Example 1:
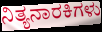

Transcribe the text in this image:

ನಿತ್ಯನಾರಕಿಗಳು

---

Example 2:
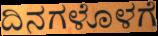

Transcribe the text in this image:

ದಿನಗಳೊಳಗೆ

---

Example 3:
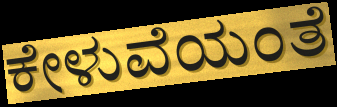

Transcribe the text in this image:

ಕೇಳುವೆಯಂತೆ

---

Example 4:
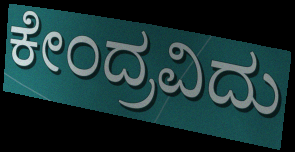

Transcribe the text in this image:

ಕೇಂದ್ರವಿದು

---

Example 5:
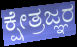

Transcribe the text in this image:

ಕ್ಷೇತ್ರಜ್ಞರ